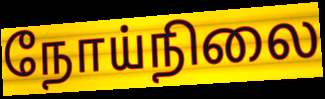
நோய்நிலை